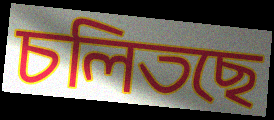
চলিতছে